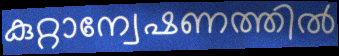
കുറ്റാന്വേഷണത്തിൽ